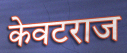
केवटराज